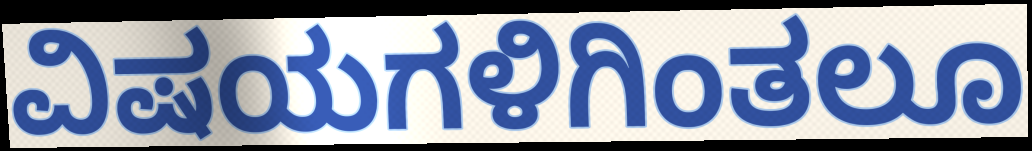
ವಿಷಯಗಳಿಗಿಂತಲೂ